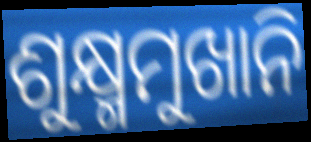
ଶୁକ୍ଷ୍ମମୁଖାନି